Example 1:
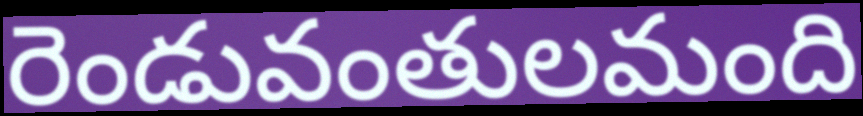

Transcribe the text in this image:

రెండువంతులమంది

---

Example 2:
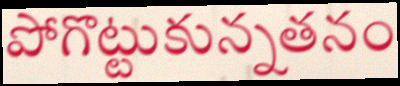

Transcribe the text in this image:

పోగొట్టుకున్నతనం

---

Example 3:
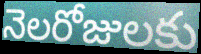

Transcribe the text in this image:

నెలరోజులకు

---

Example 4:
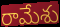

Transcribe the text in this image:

రామేశు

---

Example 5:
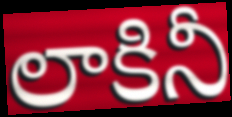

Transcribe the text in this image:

లాకినీ